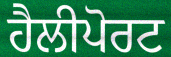
ਹੈਲੀਪੋਰਟ